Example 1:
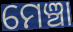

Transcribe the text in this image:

ମେଞ୍ଚା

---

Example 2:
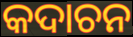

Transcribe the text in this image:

କଦାଚନ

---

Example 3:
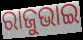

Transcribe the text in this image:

ରାଜୁଭାଇ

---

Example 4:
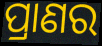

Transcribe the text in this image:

ପ୍ରାଣର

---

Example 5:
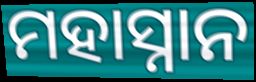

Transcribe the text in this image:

ମହାସ୍ନାନ